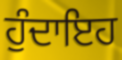
ਹੁੰਦਾਇਹ